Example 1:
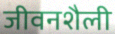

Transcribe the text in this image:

जीवनशैली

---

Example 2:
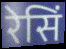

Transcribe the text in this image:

रेसिं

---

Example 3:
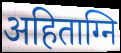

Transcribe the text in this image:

अहिताग्नि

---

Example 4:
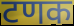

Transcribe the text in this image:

टणक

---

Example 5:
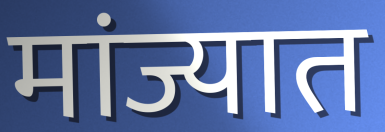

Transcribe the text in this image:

मांज्यात